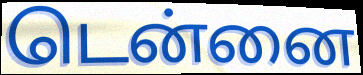
டென்னை